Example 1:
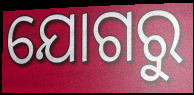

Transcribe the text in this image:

ଯୋଗରୁ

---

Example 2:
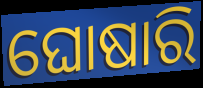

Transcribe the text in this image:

ଘୋଷାରି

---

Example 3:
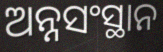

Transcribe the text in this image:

ଅନ୍ନସଂସ୍ଥାନ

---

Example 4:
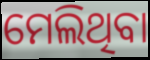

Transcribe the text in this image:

ମେଲିଥିବା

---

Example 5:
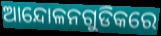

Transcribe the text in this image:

ଆନ୍ଦୋଳନଗୁଡିକରେ